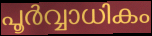
പൂർവ്വാധികം